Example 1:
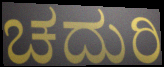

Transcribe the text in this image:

ಚದುರಿ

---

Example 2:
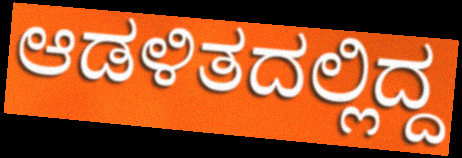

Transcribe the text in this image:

ಆಡಳಿತದಲ್ಲಿದ್ದ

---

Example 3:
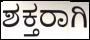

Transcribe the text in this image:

ಶಕ್ತರಾಗಿ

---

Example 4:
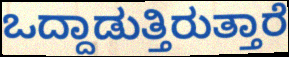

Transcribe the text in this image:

ಒದ್ದಾಡುತ್ತಿರುತ್ತಾರೆ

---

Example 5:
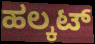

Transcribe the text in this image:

ಹಲ್ಕಟ್